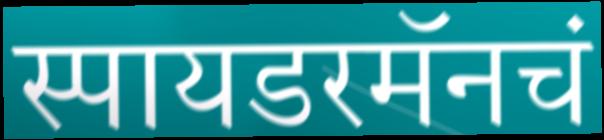
स्पायडरमॅनचं